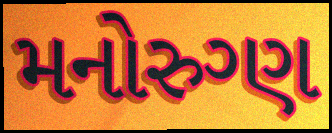
મનોરુગ્ણ